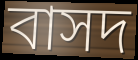
বাসদ